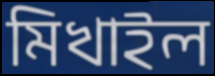
মিখাইল